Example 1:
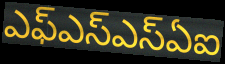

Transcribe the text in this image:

ఎఫ్ఎస్ఎస్ఏఐ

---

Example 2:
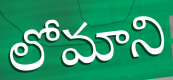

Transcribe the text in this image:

లోమాని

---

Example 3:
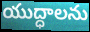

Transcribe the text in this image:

యుద్ధాలను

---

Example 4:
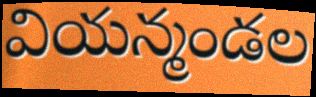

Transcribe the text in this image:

వియన్మండల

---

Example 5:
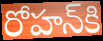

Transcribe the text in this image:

రోహన్‌కి